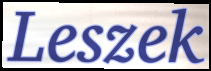
Leszek